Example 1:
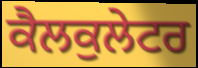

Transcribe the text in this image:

ਕੈਲਕੁਲੇਟਰ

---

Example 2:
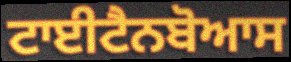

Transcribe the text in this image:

ਟਾਈਟੈਨਬੋਆਸ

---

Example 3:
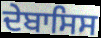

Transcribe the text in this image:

ਦੇਬਾਸਿਸ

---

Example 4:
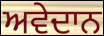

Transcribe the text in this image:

ਅਵੇਦਾਨ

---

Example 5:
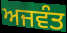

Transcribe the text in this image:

ਅਜਵੰਤ